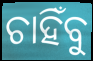
ଚାହିଁବୁ